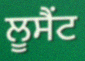
ਲੂਸੈਂਟ